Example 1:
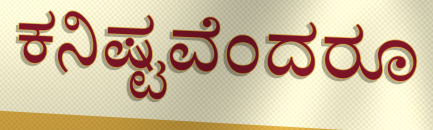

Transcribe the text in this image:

ಕನಿಷ್ಟವೆಂದರೂ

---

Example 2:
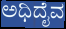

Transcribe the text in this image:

ಅಧಿದೈವ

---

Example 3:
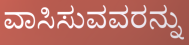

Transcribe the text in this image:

ವಾಸಿಸುವವರನ್ನು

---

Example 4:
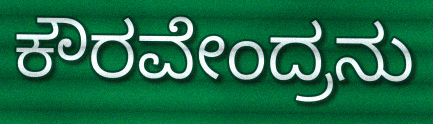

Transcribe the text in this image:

ಕೌರವೇಂದ್ರನು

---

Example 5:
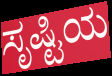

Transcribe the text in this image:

ಸೃಷ್ಟಿಯ